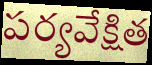
పర్యవేక్షిత